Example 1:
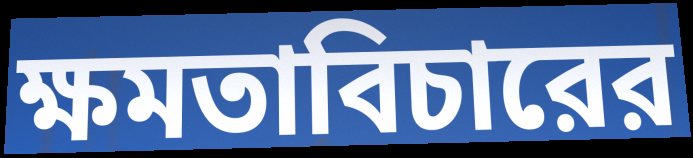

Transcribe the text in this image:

ক্ষমতাবিচারের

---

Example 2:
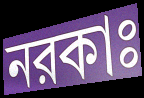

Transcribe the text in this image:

নরকাঃ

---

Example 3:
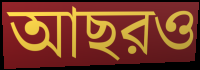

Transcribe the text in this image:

আছরও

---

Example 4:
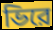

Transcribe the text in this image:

ভিরে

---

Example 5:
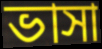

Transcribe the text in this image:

ভাসা